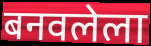
बनवलेला